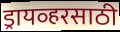
ड्रायव्हरसाठी